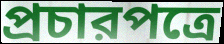
প্রচারপত্রে